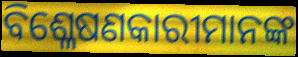
ବିଶ୍ଳେଷଣକାରୀମାନଙ୍କ